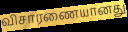
விசாரணையானது